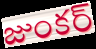
జుంకర్